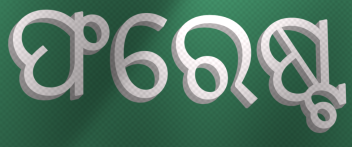
ଫରେଷ୍ଟ